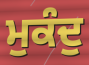
ਮੁਕੰਦੁ